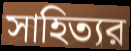
সাহিত্যর